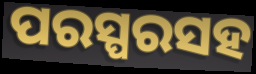
ପରସ୍ପରସହ